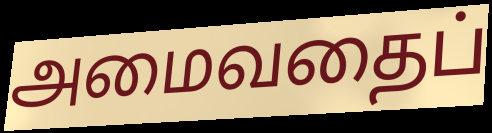
அமைவதைப்